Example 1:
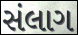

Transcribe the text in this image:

સંલાગ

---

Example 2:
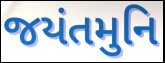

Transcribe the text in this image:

જયંતમુનિ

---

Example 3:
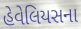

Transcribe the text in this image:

હેવેલિયસના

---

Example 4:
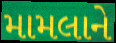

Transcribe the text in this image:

મામલાને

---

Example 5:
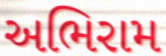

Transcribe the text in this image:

અભિરામ